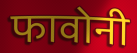
फावोनी